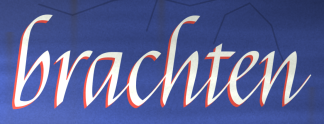
brachten